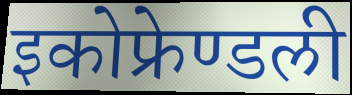
इकोफ्रेण्डली